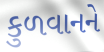
કુળવાનને